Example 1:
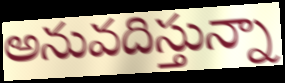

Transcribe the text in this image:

అనువదిస్తున్నా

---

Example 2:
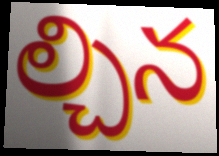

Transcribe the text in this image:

ల్చిన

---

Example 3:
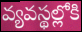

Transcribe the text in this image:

వ్యవస్థల్లోకి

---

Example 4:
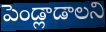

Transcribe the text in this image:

పెండ్లాడాలని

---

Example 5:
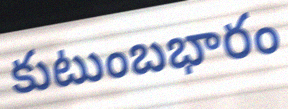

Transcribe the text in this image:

కుటుంబభారం